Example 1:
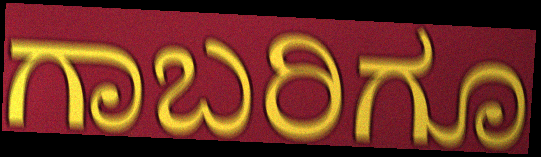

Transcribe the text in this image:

ಗಾಬರಿಗೂ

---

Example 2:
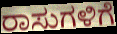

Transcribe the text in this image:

ರಾಸುಗಳಿಗೆ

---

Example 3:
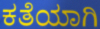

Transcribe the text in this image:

ಕತೆಯಾಗಿ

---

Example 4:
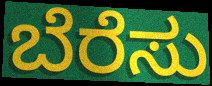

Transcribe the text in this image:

ಬೆರೆಸು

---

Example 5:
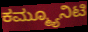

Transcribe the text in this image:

ಕಮ್ಮ್ಯೂನಿಟಿ